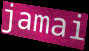
jamai